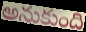
అనుకుంది